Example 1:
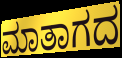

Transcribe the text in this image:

ಮಾತಾಗದ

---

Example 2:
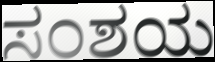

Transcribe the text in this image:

ಸಂಶಯ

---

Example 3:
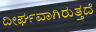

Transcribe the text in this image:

ದೀರ್ಘವಾಗಿರುತ್ತದೆ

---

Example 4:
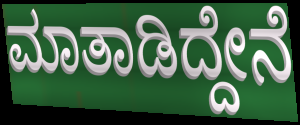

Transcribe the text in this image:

ಮಾತಾಡಿದ್ದೇನೆ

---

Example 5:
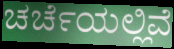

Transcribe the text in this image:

ಚರ್ಚೆಯಲ್ಲಿವೆ